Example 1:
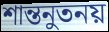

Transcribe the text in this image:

শান্তনুতনয়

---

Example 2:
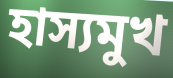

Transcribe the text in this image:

হাস্যমুখ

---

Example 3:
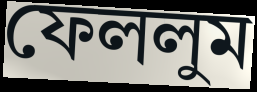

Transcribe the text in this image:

ফেললুম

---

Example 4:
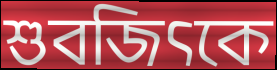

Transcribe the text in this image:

শুবজিৎকে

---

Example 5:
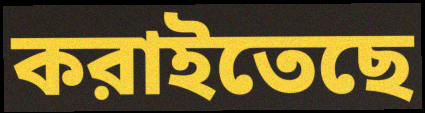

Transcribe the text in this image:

করাইতেছে